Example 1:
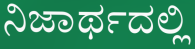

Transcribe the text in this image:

ನಿಜಾರ್ಥದಲ್ಲಿ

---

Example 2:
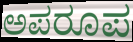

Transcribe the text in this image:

ಅಪರೂಪ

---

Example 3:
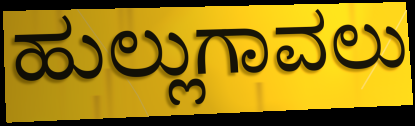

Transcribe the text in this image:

ಹುಲ್ಲುಗಾವಲು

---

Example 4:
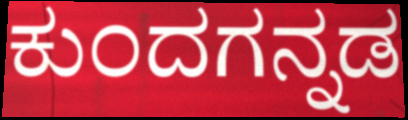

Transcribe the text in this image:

ಕುಂದಗನ್ನಡ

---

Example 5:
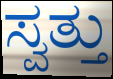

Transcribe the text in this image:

ಸ್ವತ್ತು